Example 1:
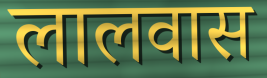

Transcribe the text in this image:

लालवास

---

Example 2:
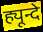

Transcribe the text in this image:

ह्यून्दे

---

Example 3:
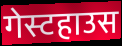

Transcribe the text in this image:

गेस्टहाउस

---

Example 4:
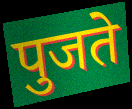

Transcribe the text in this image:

पुजते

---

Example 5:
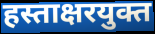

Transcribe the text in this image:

हस्ताक्षरयुक्त